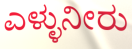
ಎಳ್ಳುನೀರು